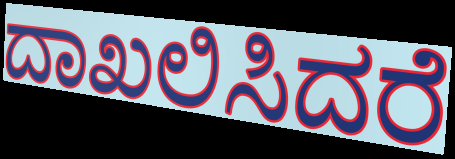
ದಾಖಲಿಸಿದರೆ